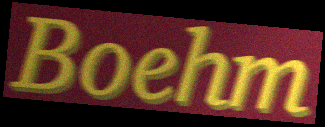
Boehm